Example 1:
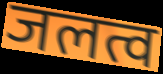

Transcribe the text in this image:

जलत्व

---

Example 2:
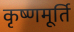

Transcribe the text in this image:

कृष्णमूर्ति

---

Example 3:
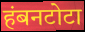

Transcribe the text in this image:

हंबनटोटा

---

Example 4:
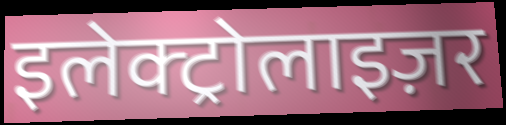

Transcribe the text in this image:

इलेक्ट्रोलाइज़र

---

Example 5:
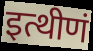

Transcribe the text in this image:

इत्थीणं